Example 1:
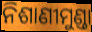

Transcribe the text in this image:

ନିଶାଣୀମୁଣ୍ଡା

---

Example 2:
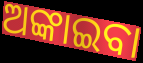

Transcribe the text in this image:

ଅଙ୍କାଇବା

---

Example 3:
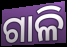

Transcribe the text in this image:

ଗାଳି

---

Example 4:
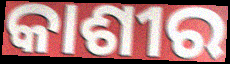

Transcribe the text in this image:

କାଶୀର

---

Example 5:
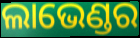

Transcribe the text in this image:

ଲାଭେଣ୍ଡର